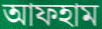
আফহাম